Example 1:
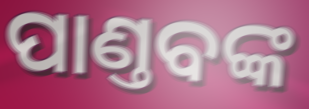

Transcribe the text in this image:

ପାଣ୍ତବଙ୍କ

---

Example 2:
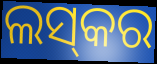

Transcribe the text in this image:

ଲସ୍‌କର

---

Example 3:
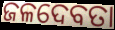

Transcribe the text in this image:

ଜଳଦେବତା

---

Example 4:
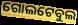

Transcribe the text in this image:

ଗୋଲଟେବୁଲ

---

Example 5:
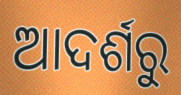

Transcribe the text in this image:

ଆଦର୍ଶରୁ